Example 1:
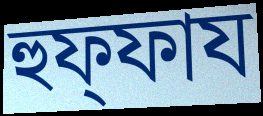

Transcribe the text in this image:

হুফ্ফায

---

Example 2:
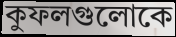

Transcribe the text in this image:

কুফলগুলোকে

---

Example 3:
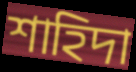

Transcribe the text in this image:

শাহিদা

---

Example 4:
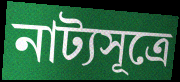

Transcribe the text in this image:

নাট্যসূত্রে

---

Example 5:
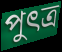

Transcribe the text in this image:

পুৎত্র